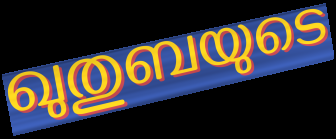
ഖുതുബയുടെ